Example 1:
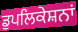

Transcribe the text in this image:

ਡੁਪਲਿਕੇਸ਼ਨਾਂ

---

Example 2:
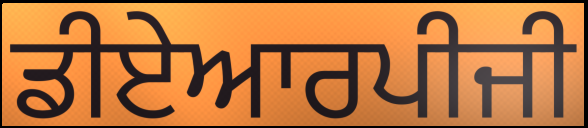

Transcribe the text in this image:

ਡੀਏਆਰਪੀਜੀ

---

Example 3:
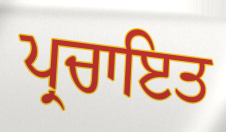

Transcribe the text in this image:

ਪ੍ਰਚਾਇਤ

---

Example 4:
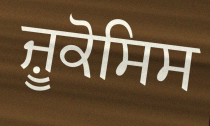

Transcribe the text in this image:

ਜ਼ੂਕੋਸਿਸ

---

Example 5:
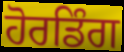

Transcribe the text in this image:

ਹੋਰਡਿੰਗ